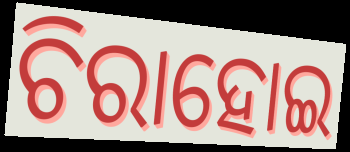
ଚିରାହୋଇ